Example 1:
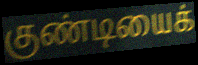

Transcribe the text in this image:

குண்டியைக்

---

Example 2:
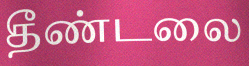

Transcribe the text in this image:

தீண்டலை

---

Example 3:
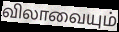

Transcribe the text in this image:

விலாவையும்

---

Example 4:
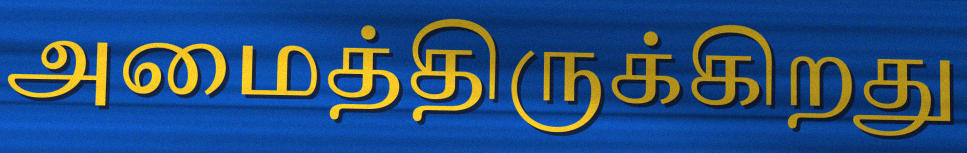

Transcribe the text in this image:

அமைத்திருக்கிறது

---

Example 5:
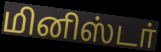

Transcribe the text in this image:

மினிஸ்டர்